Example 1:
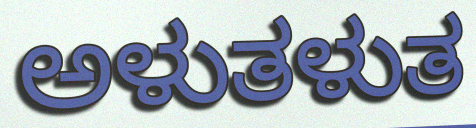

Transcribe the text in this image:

ಅಳುತಳುತ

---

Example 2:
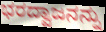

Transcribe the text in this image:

ಭರದ್ವಾಜನನ್ನು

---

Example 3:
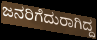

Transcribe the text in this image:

ಜನರಿಗೆದುರಾಗಿದ್ದ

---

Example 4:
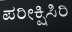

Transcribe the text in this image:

ಪರೀಕ್ಷಿಸಿರಿ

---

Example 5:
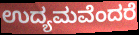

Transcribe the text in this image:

ಉದ್ಯಮವೆಂದರೆ